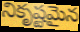
నికృష్టమైన